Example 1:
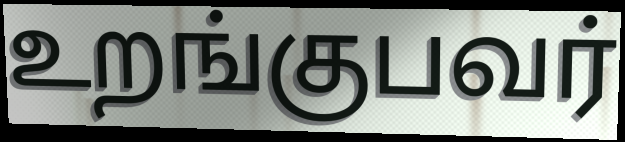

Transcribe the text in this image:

உறங்குபவர்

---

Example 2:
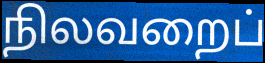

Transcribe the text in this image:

நிலவறைப்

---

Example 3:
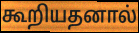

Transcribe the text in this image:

கூறியதனால்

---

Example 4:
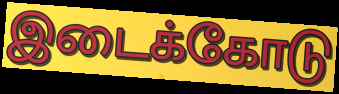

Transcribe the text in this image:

இடைக்கோடு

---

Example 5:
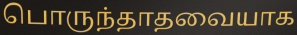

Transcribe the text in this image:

பொருந்தாதவையாக